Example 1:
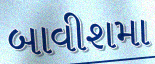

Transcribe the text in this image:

બાવીશમા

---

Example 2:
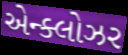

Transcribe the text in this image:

એન્ક્લોઝર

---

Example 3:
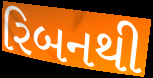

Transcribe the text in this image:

રિબનથી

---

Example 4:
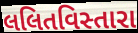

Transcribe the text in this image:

લલિતવિસ્તારા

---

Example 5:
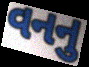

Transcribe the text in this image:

વનનુ